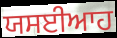
ਯਸਈਆਹ